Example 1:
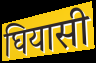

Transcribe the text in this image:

घियासी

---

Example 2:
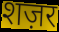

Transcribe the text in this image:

शज़र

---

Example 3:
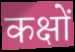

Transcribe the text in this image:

कक्षों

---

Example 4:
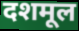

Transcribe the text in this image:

दशमूल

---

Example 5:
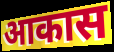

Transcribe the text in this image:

आकास